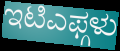
ಇಟಿಎಫ್ಗಳು